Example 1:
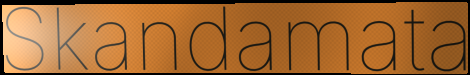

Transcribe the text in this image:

Skandamata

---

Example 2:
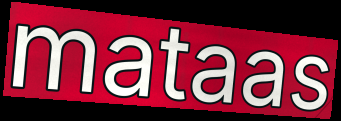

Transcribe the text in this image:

mataas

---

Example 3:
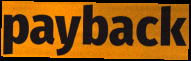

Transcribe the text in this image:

payback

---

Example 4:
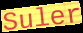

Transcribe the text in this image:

Suler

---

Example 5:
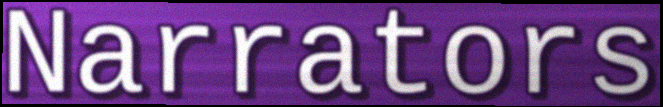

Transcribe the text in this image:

Narrators